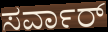
ಸರ್ವಾರ್